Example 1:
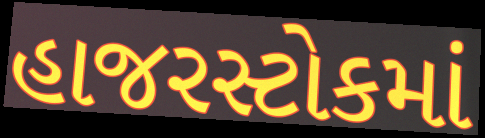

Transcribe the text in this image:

હાજરસ્ટોકમાં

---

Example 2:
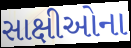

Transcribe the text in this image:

સાક્ષીઓના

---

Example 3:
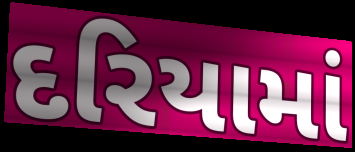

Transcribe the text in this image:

દરિયામાં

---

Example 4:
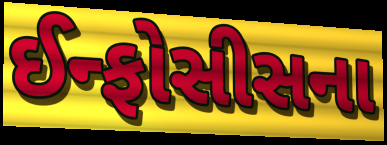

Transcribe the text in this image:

ઈન્ફોસીસના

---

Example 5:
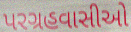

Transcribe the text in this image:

પરગ્રહવાસીઓ